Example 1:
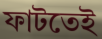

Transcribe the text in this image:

ফাটতেই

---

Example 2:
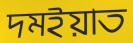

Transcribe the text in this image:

দমইয়াত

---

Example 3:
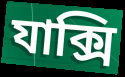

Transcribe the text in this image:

যাক্সি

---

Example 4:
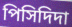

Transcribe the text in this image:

পিসিদিদা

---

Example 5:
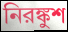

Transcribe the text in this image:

নিরঙ্কুশ